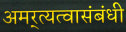
अमर्त्यत्वासंबंधी